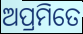
ଅପ୍ରମିତେ